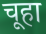
चूहा